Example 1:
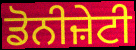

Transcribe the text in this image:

ਡੋਨੀਜ਼ੇਟੀ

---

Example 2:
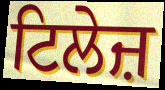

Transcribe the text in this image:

ਟਿਲੇਜ਼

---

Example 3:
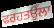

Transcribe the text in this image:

ਫਰਹਤਉੱਲਾ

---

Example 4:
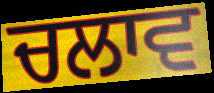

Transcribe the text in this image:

ਚਲਾਵ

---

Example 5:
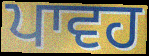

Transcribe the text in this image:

ਪਾਵਹ